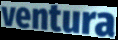
ventura